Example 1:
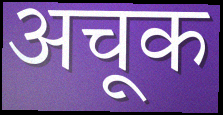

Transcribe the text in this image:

अचूक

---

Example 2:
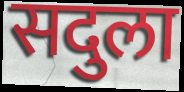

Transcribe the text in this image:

सदुला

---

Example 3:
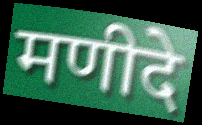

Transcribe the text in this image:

मणीदे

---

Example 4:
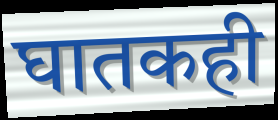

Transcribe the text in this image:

घातकही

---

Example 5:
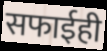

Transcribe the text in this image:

सफाईही